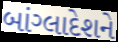
બાંગ્લાદેશને